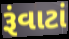
રૂંવાટાં